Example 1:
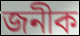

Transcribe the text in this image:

জনীক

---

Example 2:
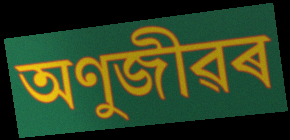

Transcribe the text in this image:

অণুজীৱৰ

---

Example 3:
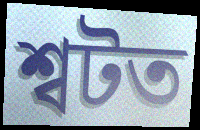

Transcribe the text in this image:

শ্বটত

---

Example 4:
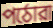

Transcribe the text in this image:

পঠোৱা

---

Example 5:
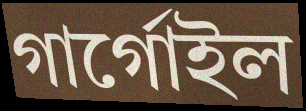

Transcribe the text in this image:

গাৰ্গোইল